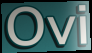
Ovi